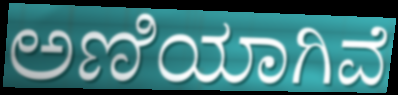
ಅಣಿಯಾಗಿವೆ